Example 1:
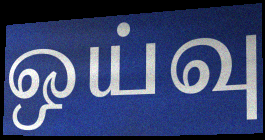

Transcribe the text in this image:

ஒய்வு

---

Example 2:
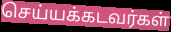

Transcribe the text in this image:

செய்யக்கடவர்கள்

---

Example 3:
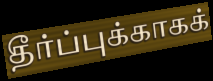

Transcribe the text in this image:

தீர்ப்புக்காகக்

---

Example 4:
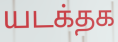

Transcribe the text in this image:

யடக்தக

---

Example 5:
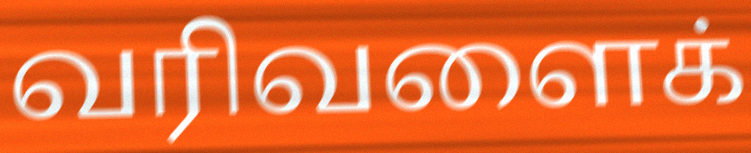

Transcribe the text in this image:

வரிவளைக்